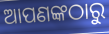
ଆପଣଙ୍କଠାରୁ